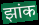
झांक